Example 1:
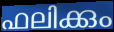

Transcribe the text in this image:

ഫലിക്കും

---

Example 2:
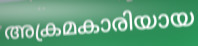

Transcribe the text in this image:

അക്രമകാരിയായ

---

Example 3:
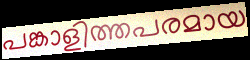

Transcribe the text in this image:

പങ്കാളിത്തപരമായ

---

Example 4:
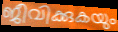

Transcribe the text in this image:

ജീവിക്കുകയും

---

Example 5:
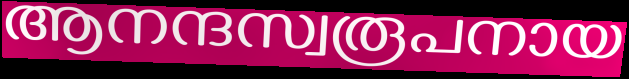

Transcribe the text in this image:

ആനന്ദസ്വരൂപനായ